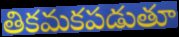
తికమకపడుతూ